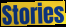
Stories